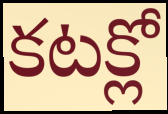
కటక్లో